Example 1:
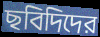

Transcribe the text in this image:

ছবিদিদের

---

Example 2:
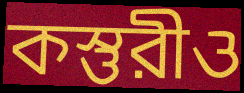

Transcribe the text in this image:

কস্তুরীও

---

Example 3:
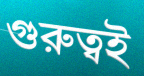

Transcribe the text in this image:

গুরুত্বই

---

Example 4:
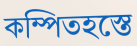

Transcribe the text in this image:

কম্পিতহস্তে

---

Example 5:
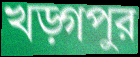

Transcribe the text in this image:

খড়্গপুর